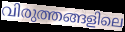
വിരുത്തങ്ങളിലെ